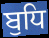
ਬੁਧਿ